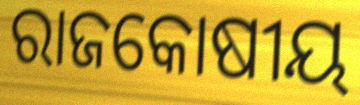
ରାଜକୋଷୀୟ